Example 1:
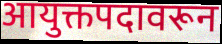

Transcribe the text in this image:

आयुक्तपदावरून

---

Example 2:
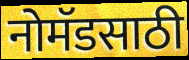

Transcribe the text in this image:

नोमॅडसाठी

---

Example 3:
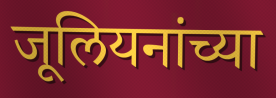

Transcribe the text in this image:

जूलियनांच्या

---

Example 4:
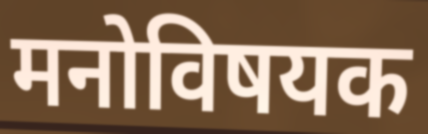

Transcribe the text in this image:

मनोविषयक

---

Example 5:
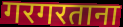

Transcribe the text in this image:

गरगरताना